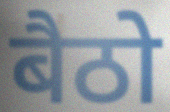
बैठो